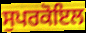
ਸੁਪਰਕੋਇਲ